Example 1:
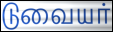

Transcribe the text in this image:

டுவையர்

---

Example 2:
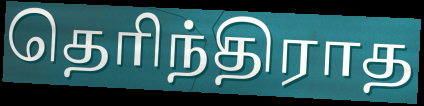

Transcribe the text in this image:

தெரிந்திராத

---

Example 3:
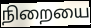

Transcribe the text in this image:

நிறையை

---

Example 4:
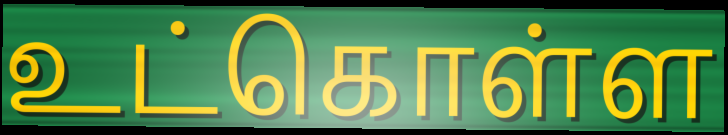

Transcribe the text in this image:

உட்கொள்ள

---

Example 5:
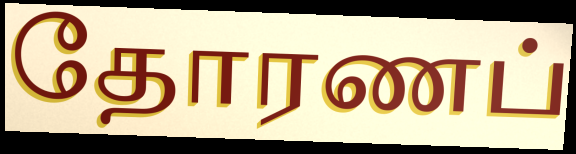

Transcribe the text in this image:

தோரணப்